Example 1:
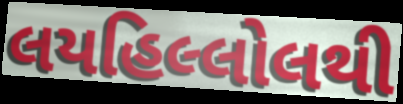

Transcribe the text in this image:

લયહિલ્લોલથી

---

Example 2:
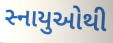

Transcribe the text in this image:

સ્નાયુઓથી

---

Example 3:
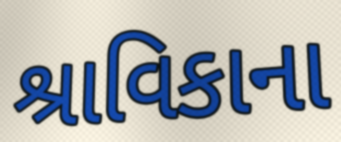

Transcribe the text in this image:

શ્રાવિકાના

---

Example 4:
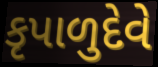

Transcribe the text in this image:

કૃપાળુદેવે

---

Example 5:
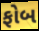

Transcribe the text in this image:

ફોબ